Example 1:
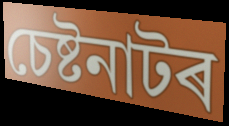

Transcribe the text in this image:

চেষ্টনাটৰ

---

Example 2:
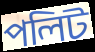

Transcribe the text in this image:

পলিট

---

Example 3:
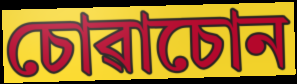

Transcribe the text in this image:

চোৱাচোন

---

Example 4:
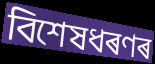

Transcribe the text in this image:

বিশেষধৰণৰ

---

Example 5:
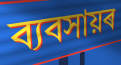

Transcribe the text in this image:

ব্যবসায়ৰ